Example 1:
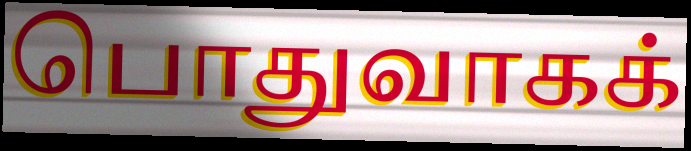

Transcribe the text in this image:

பொதுவாகக்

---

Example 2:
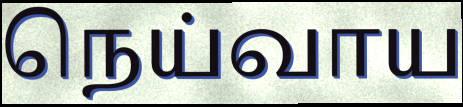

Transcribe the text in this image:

நெய்வாய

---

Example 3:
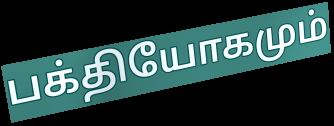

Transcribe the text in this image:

பக்தியோகமும்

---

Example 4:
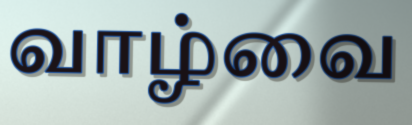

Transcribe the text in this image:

வாழ்வை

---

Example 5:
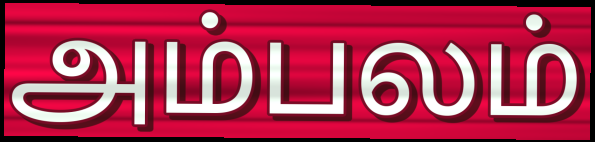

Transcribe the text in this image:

அம்பலம்